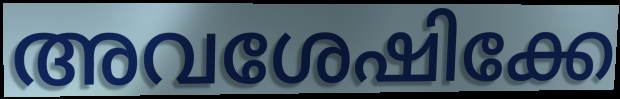
അവശേഷിക്കേ